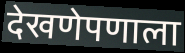
देखणेपणाला